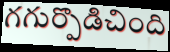
గగుర్పొడిచింది